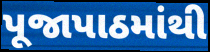
પૂજાપાઠમાંથી